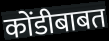
कोंडीबाबत